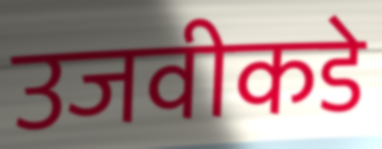
उजवीकडे